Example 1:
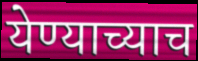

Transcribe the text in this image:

येण्याच्याच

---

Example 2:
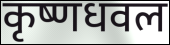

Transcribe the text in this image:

कृष्णधवल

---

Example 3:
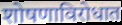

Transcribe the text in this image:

शोषणाविरोधात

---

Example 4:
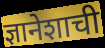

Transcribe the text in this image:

ज्ञानेशाची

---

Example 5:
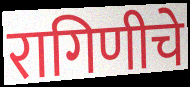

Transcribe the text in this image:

रागिणीचे